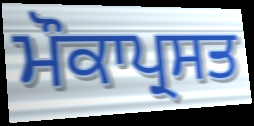
ਮੌਕਾਪ੍ਰਸਤ